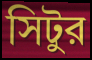
সিটুর